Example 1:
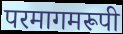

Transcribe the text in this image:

परमागमरूपी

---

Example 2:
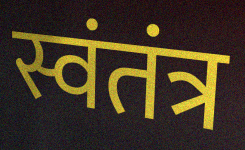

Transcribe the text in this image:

स्वंतंत्र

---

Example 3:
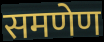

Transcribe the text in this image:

समणेण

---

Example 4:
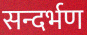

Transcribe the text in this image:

सन्दर्भण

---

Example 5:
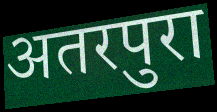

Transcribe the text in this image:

अतरपुरा